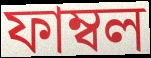
ফাম্বল